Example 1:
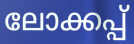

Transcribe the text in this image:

ലോക്കപ്പ്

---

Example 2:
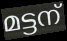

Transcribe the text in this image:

മട്ടന്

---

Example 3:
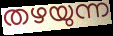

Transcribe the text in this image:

തഴയുന്ന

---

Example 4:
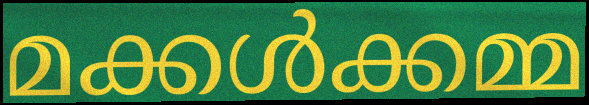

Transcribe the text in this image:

മക്കൾക്കമ്മ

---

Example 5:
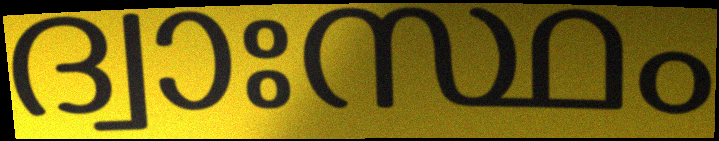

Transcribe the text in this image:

ദ്വാഃസ്ഥം